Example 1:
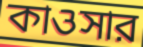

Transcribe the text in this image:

কাওসার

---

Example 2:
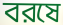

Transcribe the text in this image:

বরষে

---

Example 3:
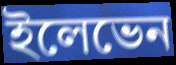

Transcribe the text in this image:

ইলেভেন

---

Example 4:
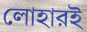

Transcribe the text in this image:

লোহারই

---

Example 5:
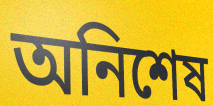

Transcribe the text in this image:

অনিশেষ